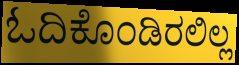
ಓದಿಕೊಂಡಿರಲಿಲ್ಲ